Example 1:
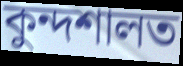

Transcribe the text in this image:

কুন্দশালত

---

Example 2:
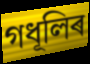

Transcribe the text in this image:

গধূলিৰ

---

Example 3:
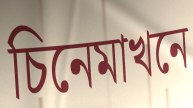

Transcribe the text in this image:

চিনেমাখনে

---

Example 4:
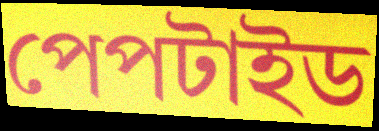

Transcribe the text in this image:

পেপটাইড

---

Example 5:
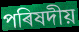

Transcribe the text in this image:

পৰিষদীয়